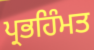
ਪ੍ਰਭਹਿੰਮਤ